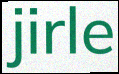
jirle